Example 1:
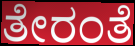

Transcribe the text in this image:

ತೇರಂತೆ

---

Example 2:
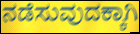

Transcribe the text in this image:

ನಡೆಸುವುದಕ್ಕಾಗಿ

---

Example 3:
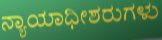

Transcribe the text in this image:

ನ್ಯಾಯಾಧೀಶರುಗಳು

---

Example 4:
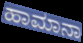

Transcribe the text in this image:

ಹಾಮಾನಾ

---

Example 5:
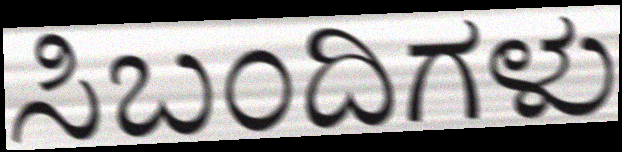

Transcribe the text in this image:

ಸಿಬಂದಿಗಳು